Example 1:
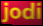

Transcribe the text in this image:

jodi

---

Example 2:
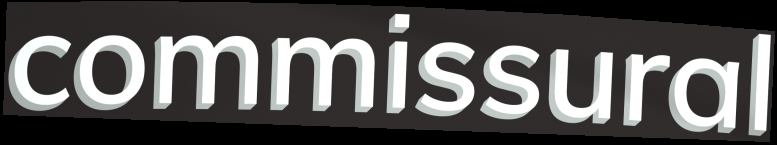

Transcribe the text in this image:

commissural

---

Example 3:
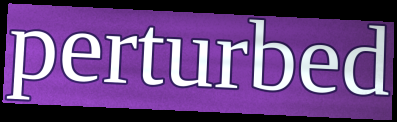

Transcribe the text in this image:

perturbed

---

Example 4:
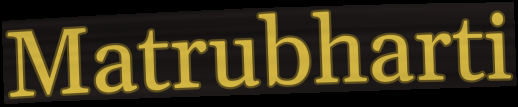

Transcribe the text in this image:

Matrubharti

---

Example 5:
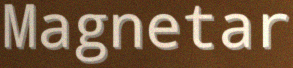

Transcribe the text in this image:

Magnetar